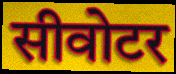
सीवोटर